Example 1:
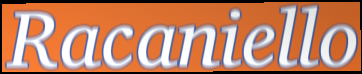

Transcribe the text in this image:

Racaniello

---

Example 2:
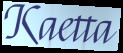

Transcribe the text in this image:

Kaetta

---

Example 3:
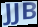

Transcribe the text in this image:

JJB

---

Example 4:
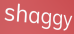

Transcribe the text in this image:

shaggy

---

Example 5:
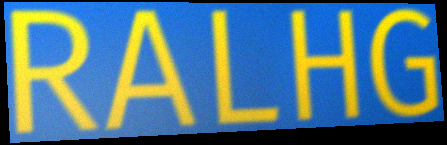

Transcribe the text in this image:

RALHG